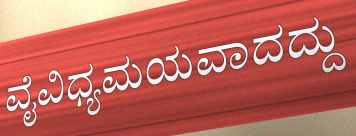
ವೈವಿಧ್ಯಮಯವಾದದ್ದು